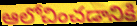
ఆలోచించడానికి